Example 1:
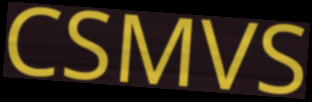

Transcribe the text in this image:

CSMVS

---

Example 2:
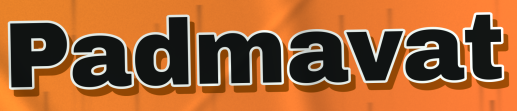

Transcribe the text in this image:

Padmavat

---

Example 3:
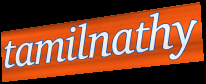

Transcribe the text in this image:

tamilnathy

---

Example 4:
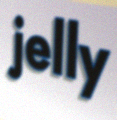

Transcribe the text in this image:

jelly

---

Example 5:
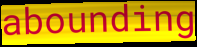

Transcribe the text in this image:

abounding